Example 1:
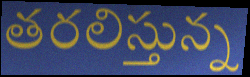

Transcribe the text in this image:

తరలిస్తున్న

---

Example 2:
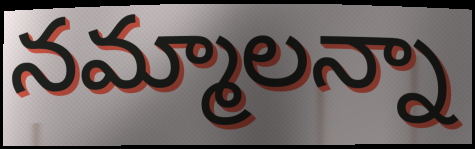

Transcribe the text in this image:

నమ్మాలన్నా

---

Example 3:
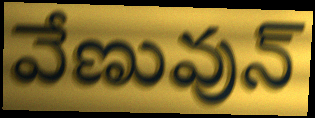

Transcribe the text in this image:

వేణువున్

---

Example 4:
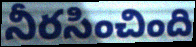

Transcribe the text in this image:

నీరసించింది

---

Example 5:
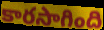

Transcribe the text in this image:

కారసాగింది